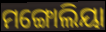
ମଙ୍ଗୋଲିୟା